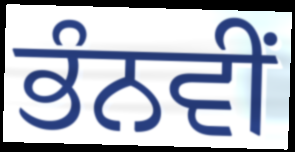
ਭੰਨਵੀਂ